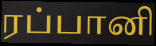
ரப்பானி